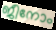
ജീനോം